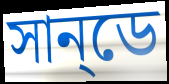
সান্‌ডে